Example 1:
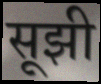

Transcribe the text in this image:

सूझी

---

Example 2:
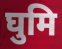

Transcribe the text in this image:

घुमि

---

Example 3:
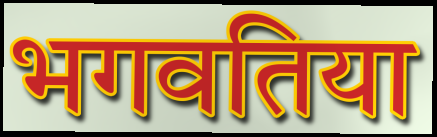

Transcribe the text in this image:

भगवतिया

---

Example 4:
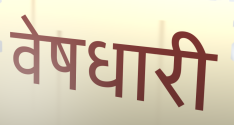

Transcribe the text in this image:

वेषधारी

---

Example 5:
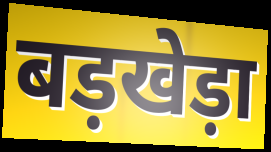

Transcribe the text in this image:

बड़खेड़ा